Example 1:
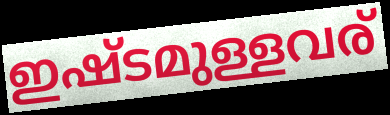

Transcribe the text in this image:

ഇഷ്ടമുള്ളവര്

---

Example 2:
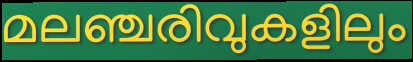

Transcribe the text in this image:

മലഞ്ചരിവുകളിലും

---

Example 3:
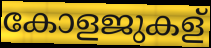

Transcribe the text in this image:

കോളജുകള്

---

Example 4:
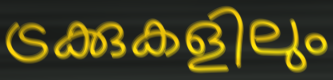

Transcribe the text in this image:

ട്രക്കുകളിലും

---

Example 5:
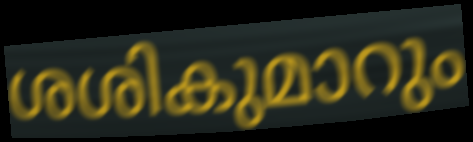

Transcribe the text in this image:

ശശികുമാറും